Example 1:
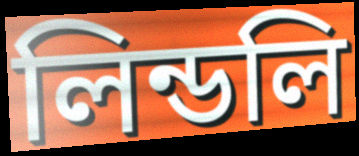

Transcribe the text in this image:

লিন্ডলি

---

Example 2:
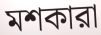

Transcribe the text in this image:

মশকারা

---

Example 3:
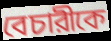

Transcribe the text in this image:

বেচারীকে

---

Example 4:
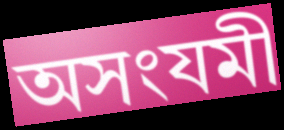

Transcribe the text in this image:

অসংযমী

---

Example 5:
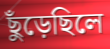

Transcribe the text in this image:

ছুঁড়েছিলে